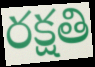
రక్షతి